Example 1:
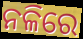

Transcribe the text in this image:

ନଳିରେ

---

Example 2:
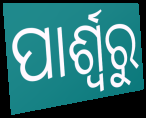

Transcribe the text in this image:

ପାର୍ଶ୍ଵରୁ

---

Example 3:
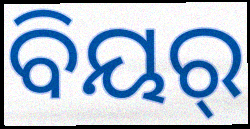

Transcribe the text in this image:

ବିୟର୍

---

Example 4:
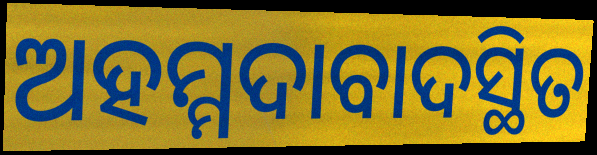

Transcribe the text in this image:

ଅହମ୍ମଦାବାଦସ୍ଥିତ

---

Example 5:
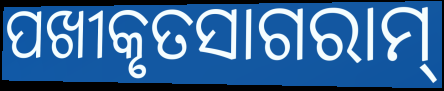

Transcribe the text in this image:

ପଖୀକୃତସାଗରାମ୍